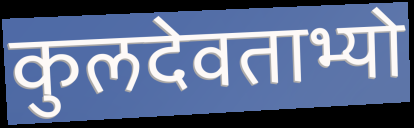
कुलदेवताभ्यो